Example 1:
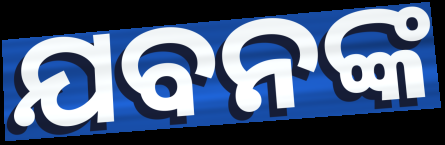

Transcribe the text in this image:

ଯବନଙ୍କ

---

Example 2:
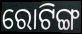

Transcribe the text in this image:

ରୋଟିଙ୍ଗ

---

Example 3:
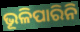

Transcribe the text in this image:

ଭୂଳିପାରିନି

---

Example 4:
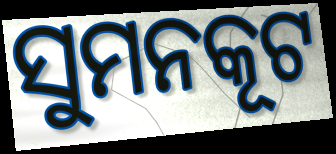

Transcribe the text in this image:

ସୁମନକୂଟ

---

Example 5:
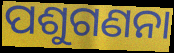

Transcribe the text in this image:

ପଶୁଗଣନା